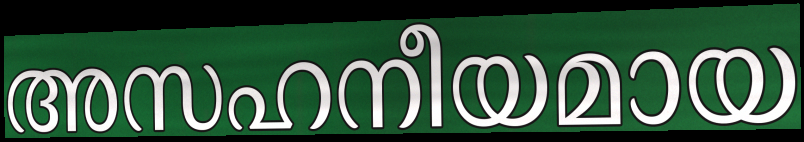
അസഹനീയമായ